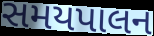
સમયપાલન